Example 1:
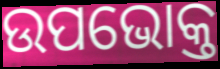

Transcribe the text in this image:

ଉପଭୋକ୍ତ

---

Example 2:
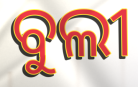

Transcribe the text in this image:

ବୁଲୀ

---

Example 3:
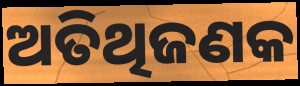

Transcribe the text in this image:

ଅତିଥିଜଣକ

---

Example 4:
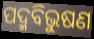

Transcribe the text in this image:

ପଦ୍ମବିଭୁଷଣ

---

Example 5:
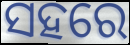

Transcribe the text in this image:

ସହରେ